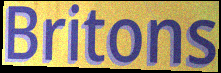
Britons